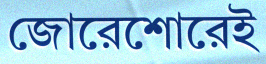
জোরেশোরেই